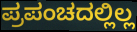
ಪ್ರಪಂಚದಲ್ಲಿಲ್ಲ